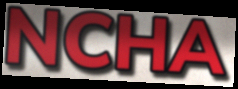
NCHA